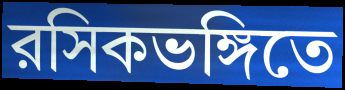
রসিকভঙ্গিতে